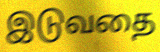
இடுவதை